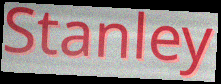
Stanley